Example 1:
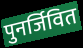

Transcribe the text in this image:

पुनर्जिवित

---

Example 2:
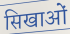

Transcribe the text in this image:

सिखाओं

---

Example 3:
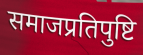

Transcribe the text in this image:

समाजप्रतिपुष्टि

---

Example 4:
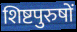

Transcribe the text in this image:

शिष्टपुरुषों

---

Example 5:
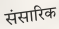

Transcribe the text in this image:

संसारिक